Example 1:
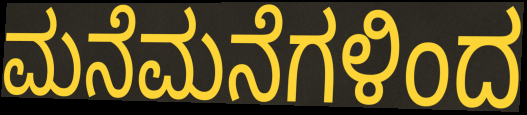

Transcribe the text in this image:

ಮನೆಮನೆಗಳಿಂದ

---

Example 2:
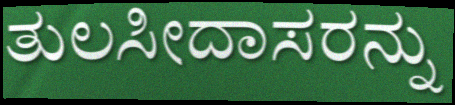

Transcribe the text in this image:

ತುಲಸೀದಾಸರನ್ನು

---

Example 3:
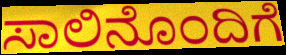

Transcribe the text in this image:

ಸಾಲಿನೊಂದಿಗೆ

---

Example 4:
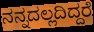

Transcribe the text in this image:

ನನ್ನದಲ್ಲದಿದ್ದರೆ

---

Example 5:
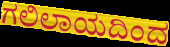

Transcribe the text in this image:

ಗಲಿಲಾಯದಿಂದ